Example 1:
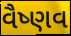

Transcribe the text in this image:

વૈષ્ણવ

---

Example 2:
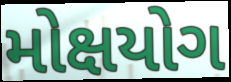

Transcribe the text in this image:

મોક્ષયોગ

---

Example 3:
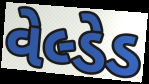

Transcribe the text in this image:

વેલ્ડેડ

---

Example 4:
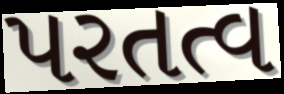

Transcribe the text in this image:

પરતત્વ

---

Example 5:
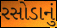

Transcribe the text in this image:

રસોડાનું